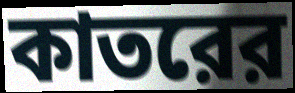
কাতরের